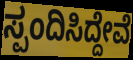
ಸ್ಪಂದಿಸಿದ್ದೇವೆ